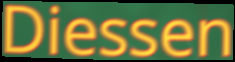
Diessen